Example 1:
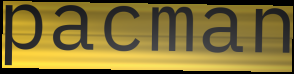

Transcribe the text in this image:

pacman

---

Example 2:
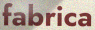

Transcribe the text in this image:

fabrica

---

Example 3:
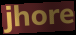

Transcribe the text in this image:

jhore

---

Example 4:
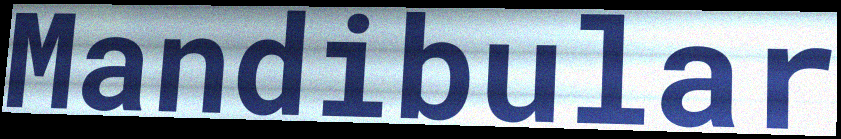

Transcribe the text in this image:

Mandibular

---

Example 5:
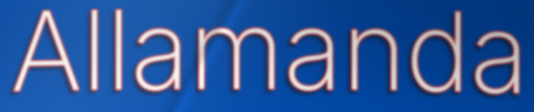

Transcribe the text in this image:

Allamanda